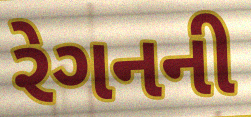
રેગનની